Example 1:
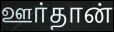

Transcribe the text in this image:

ஊர்தான்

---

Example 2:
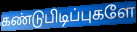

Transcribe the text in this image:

கண்டுபிடிப்புகளே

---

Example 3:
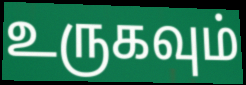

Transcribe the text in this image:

உருகவும்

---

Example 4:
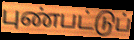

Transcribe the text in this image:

புண்பட்டுப்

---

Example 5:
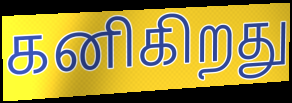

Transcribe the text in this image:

கனிகிறது